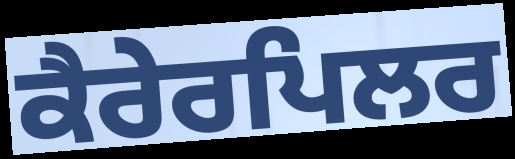
ਕੈਰੇਰਪਿਲਰ